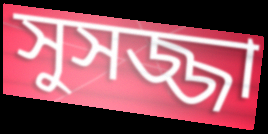
সুসজ্জা